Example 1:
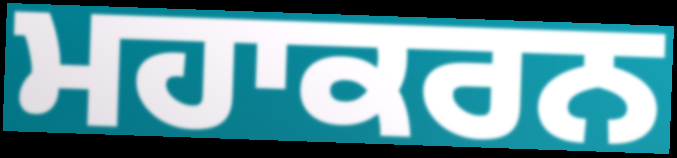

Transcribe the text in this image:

ਮਹਾਕਰਨ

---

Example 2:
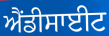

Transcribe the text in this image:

ਐਂਡੀਸਾਈਟ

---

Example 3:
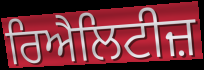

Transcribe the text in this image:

ਰਿਐਲਿਟੀਜ਼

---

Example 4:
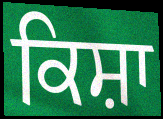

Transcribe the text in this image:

ਕਿਸ਼ਾ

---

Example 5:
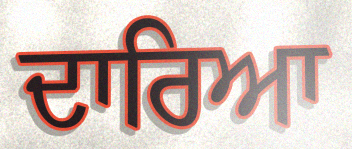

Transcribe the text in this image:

ਦਾਰਿਆ